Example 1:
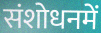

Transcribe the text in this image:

संशोधनमें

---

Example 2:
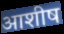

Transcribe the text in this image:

आशीष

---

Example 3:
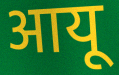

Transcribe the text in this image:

आयू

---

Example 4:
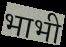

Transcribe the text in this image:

भाभी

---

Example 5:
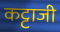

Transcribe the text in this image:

कट्टाजी